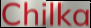
Chilka